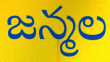
జన్మల